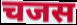
चजस